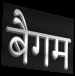
बैगम